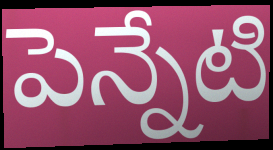
పెన్నేటి